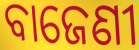
ବାଜେଣୀ